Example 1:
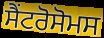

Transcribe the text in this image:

ਸੈਂਟਰੋਸੋਮਸ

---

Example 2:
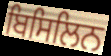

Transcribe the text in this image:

ਬਿਸਿਲਿਨ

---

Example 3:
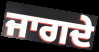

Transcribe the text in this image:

ਜਾਗਦੇ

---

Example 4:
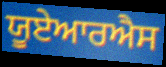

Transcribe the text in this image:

ਯੂਏਆਰਐਸ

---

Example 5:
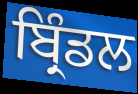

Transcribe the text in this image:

ਬ੍ਰਿੰਡਲ